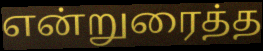
என்றுரைத்த